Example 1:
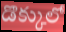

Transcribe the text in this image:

డొక్కులో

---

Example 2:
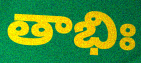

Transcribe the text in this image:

తాభిః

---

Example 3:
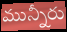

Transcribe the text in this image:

మున్నీరు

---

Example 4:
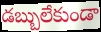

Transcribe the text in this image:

డబ్బులేకుండా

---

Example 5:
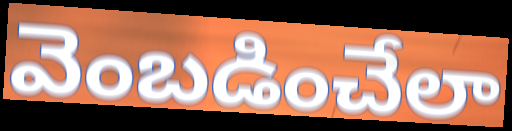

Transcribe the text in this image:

వెంబడించేలా